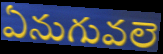
ఏనుగువలె